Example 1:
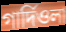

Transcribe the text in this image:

গার্দিওলা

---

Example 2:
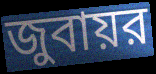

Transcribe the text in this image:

জুবায়র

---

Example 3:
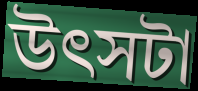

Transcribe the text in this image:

উৎসটা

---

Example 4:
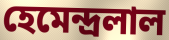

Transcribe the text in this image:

হেমেন্দ্রলাল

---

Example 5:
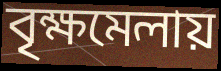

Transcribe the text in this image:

বৃক্ষমেলায়